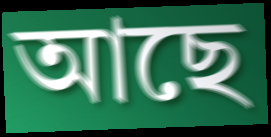
আছে